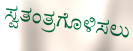
ಸ್ವತಂತ್ರಗೊಳಿಸಲು